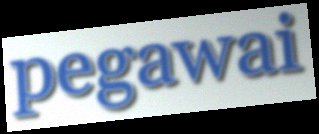
pegawai